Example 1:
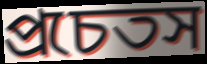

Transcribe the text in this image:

প্রচেতস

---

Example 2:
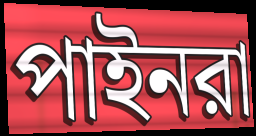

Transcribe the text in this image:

পাইনরা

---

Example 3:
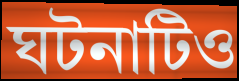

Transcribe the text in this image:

ঘটনাটিও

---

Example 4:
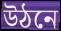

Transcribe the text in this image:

উঠনে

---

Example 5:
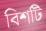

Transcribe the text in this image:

বিশটি